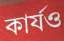
কার্যও